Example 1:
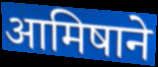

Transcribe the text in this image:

आमिषाने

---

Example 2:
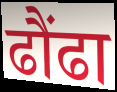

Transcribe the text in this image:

ढौंढा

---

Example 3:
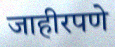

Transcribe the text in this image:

जाहीरपणे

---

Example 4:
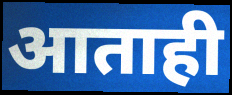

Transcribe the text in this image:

आताही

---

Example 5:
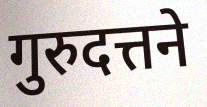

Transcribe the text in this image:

गुरुदत्तने